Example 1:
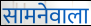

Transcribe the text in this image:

सामनेवाला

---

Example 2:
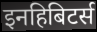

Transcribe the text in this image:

इनहिबिटर्स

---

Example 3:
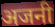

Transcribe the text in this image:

अजनी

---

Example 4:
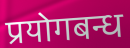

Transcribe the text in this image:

प्रयोगबन्ध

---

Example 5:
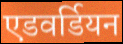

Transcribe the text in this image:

एडवर्डियन